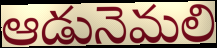
ఆడునెమలి